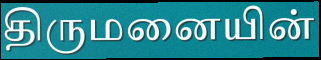
திருமனையின்